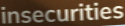
insecurities